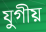
যুগীয়